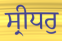
ਸ੍ਰੀਧਰੁ